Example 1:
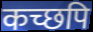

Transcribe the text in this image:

कच्छपि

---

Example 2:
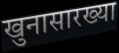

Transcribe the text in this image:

खुनासारख्या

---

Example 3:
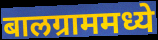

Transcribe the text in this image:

बालग्राममध्ये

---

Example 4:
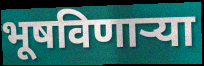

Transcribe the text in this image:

भूषविणार्‍या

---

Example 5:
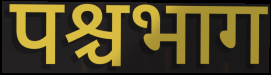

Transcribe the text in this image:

पश्चभाग